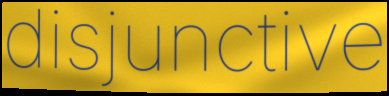
disjunctive